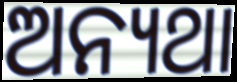
ଅନ୍ୟଥା